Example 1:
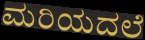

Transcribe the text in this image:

ಮರಿಯದಲೆ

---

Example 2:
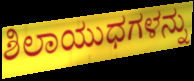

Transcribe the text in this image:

ಶಿಲಾಯುಧಗಳನ್ನು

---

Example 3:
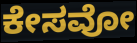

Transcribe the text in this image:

ಕೇಸವೋ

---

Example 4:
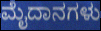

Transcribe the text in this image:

ಮೈದಾನಗಳು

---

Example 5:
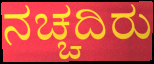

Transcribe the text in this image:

ನಚ್ಚದಿರು